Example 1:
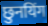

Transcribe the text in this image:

छुनयिंग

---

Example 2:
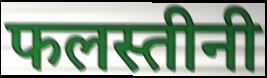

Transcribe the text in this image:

फलस्तीनी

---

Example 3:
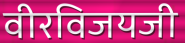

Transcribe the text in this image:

वीरविजयजी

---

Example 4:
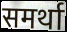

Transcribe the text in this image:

समर्था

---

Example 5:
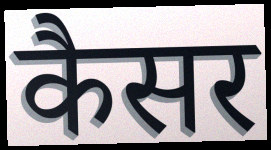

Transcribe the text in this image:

कैसर